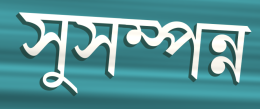
সুসম্পন্ন